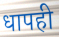
धापही